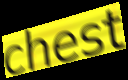
chest